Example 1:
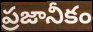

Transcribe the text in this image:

ప్రజానీకం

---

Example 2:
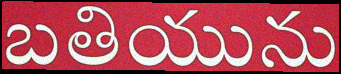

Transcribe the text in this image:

బతియును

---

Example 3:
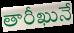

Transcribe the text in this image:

తారీఖునే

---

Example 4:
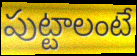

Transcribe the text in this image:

పుట్టాలంటే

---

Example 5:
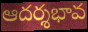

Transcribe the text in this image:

ఆదర్శభావ